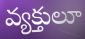
వ్యక్తులూ